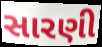
સારણી